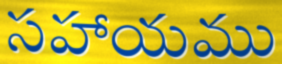
సహాయము